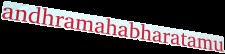
andhramahabharatamu